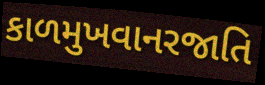
કાળમુખવાનરજાતિ